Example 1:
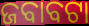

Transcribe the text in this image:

ଜବାବଟା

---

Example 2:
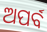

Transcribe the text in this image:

ଅପର୍ବ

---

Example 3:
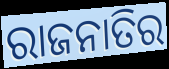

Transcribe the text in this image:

ରାଜନାତିର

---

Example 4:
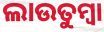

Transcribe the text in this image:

ଲାଉତୁମ୍ବା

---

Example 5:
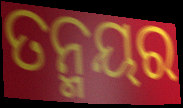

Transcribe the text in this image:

ତନ୍ମୟର